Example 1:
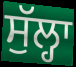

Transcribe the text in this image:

ਸੁੱਲ੍ਹਾ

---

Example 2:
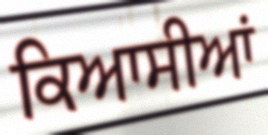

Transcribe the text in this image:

ਕਿਆਸੀਆਂ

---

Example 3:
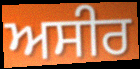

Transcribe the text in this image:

ਅਸੀਰ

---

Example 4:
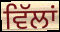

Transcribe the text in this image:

ਵਿੱਲਾਂ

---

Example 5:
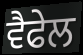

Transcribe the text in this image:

ਵੈਫੇਲ